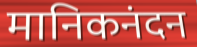
मानिकनंदन